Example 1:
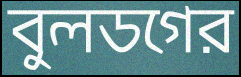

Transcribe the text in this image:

বুলডগের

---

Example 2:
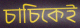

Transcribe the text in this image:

চাচিকেই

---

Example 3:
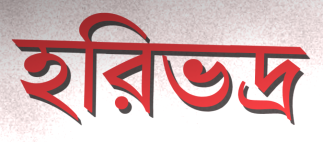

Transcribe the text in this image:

হরিভদ্র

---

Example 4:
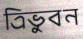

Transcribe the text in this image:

ত্রিভুবন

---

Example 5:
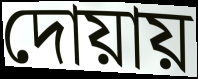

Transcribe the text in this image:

দোয়ায়